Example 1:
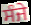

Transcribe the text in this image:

ਸੰਜੇ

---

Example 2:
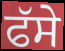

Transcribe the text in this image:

ਫੱਸੇ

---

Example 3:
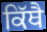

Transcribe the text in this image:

ਕਿੱਥੈ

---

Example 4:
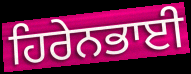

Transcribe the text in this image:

ਹਿਰੇਨਭਾਈ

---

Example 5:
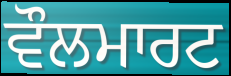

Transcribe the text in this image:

ਵੌਲਮਾਰਟ